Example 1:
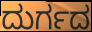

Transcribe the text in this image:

ದುರ್ಗದ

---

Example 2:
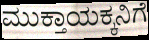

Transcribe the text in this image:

ಮುಕ್ತಾಯಕ್ಕನಿಗೆ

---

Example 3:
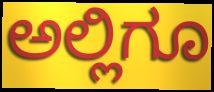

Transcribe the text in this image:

ಅಲ್ಲಿಗೂ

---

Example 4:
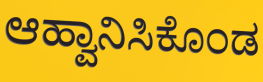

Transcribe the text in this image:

ಆಹ್ವಾನಿಸಿಕೊಂಡ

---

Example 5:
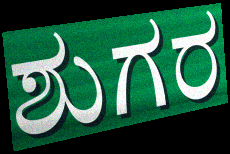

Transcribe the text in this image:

ಶುಗರ